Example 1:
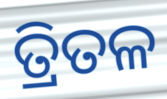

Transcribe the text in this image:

ତ୍ରିତଳ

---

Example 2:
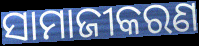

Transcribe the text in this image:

ସାମାଜୀକରଣ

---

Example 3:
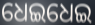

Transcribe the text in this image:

ଧେଇଧେଇ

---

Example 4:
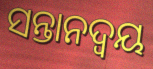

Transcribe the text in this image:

ସନ୍ତାନଦ୍ୱୟ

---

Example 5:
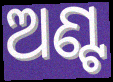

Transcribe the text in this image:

ଅଣ୍ଟ